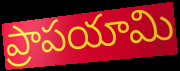
ప్రాపయామి